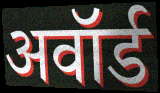
अवॉर्ड